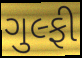
ગુલ્ફી